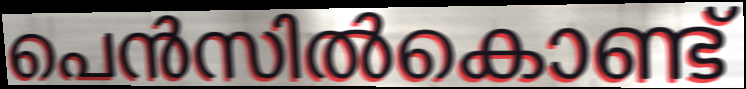
പെൻസിൽകൊണ്ട്